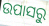
ଉପାସରୁ